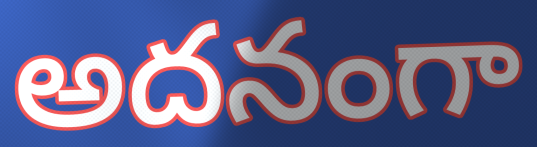
అదనంగా